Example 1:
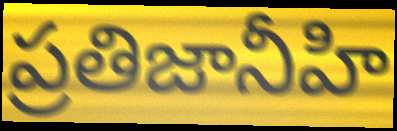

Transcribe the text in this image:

ప్రతిజానీహి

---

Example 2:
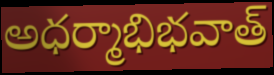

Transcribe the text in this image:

అధర్మాభిభవాత్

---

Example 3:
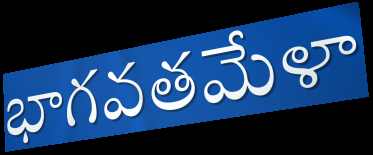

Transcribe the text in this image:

భాగవతమేళా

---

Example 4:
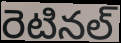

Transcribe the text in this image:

రెటినల్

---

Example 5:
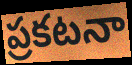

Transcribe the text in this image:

ప్రకటనా